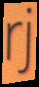
rj